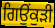
ਗਿਉਂਕੁੜੀ